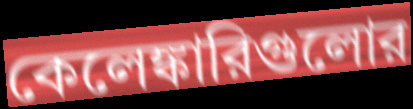
কেলেঙ্কারিগুলোর